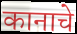
कानाचे